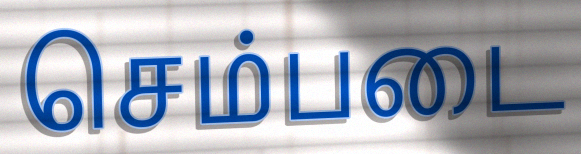
செம்படை